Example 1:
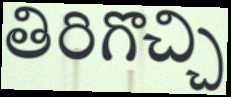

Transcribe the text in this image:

తిరిగొచ్చి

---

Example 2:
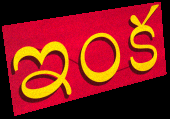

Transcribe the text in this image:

ఇంక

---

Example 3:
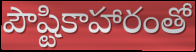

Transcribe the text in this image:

పౌష్టికాహారంతో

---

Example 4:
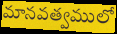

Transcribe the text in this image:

మానవత్వములో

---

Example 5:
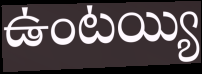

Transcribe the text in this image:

ఉంటయ్యి